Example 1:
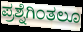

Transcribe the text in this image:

ಪ್ರಶ್ನೆಗಿಂತಲೂ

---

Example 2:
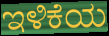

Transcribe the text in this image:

ಇಳಿಕೆಯ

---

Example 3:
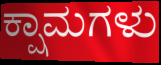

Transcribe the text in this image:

ಕ್ಷಾಮಗಳು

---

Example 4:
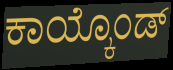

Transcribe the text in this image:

ಕಾಯ್ಕೊಂಡ್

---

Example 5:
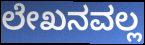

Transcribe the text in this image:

ಲೇಖನವಲ್ಲ